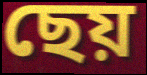
ছেয়